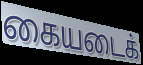
கையடைக்